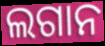
ଲଗାନ